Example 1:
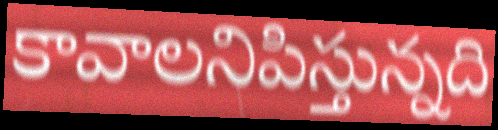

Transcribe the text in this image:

కావాలనిపిస్తున్నది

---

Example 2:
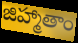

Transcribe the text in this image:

జిహ్మాతాం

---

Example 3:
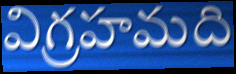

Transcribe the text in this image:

విగ్రహమది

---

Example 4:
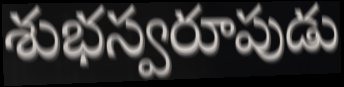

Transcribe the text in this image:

శుభస్వరూపుడు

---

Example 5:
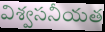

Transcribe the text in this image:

విశ్వసనీయత